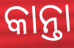
କାନ୍ତା